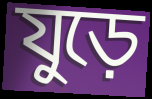
যুড়ে